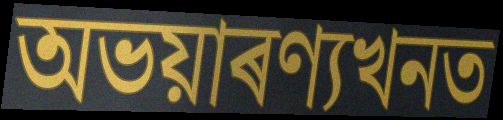
অভয়াৰণ্যখনত